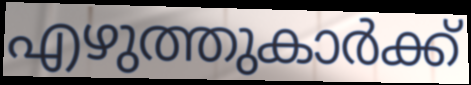
എഴുത്തുകാർക്ക്